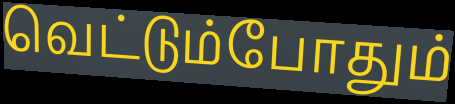
வெட்டும்போதும்